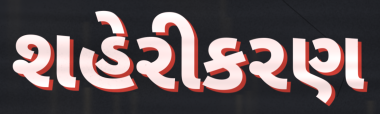
શહેરીકરણ